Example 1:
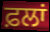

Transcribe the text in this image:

ਫ਼ਲਾਂ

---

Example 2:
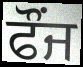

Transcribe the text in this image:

ਫੌਂਜ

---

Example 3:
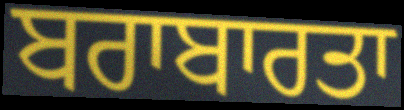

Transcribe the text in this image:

ਬਰਾਬਾਰਤਾ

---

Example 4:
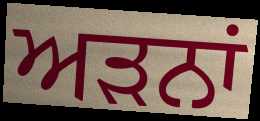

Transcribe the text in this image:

ਅੜਨਾਂ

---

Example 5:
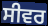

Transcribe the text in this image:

ਸੀਵਰ